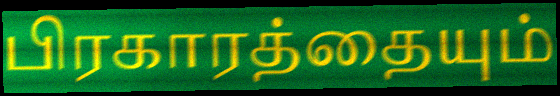
பிரகாரத்தையும்